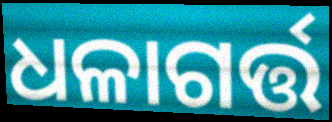
ଧଳାଗର୍ତ୍ତ